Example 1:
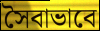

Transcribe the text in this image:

সৈবাভাবে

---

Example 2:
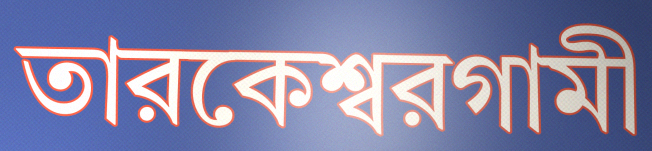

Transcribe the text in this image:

তারকেশ্বরগামী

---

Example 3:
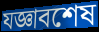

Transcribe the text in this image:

যজ্ঞাবশেষ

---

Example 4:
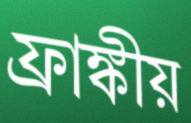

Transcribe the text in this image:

ফ্রাঙ্কীয়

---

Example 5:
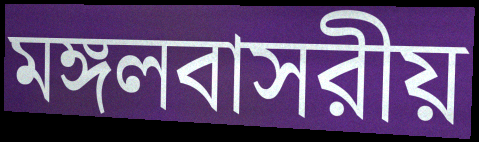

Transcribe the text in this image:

মঙ্গলবাসরীয়